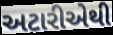
અટારીએથી